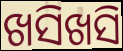
ଖସିଖସି